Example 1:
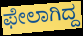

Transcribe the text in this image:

ಫೇಲಾಗಿದ್ದ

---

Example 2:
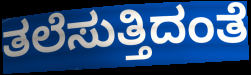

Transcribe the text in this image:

ತಲೆಸುತ್ತಿದಂತೆ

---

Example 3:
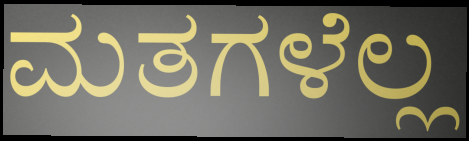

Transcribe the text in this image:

ಮತಗಳೆಲ್ಲ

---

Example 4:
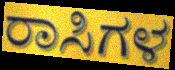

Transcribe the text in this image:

ರಾಸಿಗಳ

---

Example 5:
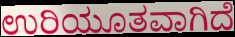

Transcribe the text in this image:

ಉರಿಯೂತವಾಗಿದೆ